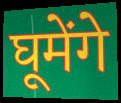
घूमेंगे